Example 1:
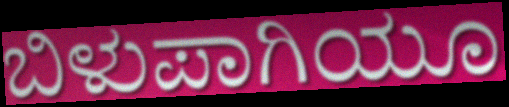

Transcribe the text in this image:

ಬಿಳುಪಾಗಿಯೂ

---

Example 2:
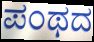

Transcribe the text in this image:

ಪಂಥದ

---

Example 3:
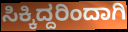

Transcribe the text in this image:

ಸಿಕ್ಕಿದ್ದರಿಂದಾಗಿ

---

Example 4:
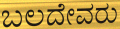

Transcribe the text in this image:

ಬಲದೇವರು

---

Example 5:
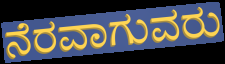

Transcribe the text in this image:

ನೆರವಾಗುವರು